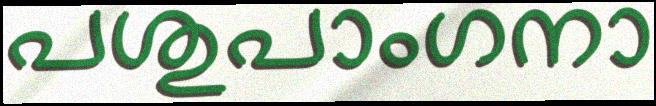
പശുപാംഗനാ